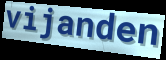
vijanden